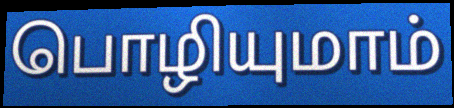
பொழியுமாம்